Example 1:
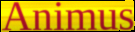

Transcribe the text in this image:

Animus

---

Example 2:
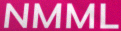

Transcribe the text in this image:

NMML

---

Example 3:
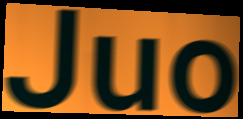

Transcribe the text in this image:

Juo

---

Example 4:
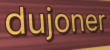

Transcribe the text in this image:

dujoner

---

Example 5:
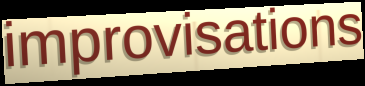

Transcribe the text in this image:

improvisations